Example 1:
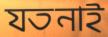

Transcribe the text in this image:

যতনাই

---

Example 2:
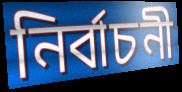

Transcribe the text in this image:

নিৰ্বাচনী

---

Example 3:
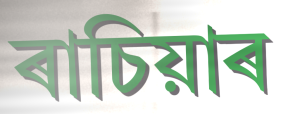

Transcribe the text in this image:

ৰাচিয়াৰ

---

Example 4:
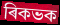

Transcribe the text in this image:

ৰিকভক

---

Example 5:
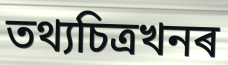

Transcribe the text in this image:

তথ্যচিত্ৰখনৰ